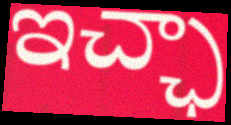
ఇచ్ఛా